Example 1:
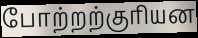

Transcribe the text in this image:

போற்றற்குரியன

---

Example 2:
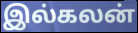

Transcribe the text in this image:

இல்கலன்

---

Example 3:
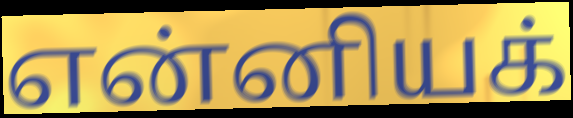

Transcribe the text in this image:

என்னியக்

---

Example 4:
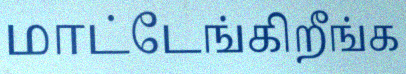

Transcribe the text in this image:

மாட்டேங்கிறீங்க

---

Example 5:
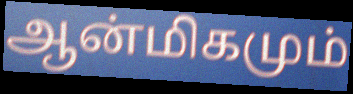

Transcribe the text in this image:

ஆன்மிகமும்